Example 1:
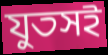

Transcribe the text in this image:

যুতসই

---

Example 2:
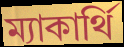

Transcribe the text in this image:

ম্যাকার্থি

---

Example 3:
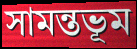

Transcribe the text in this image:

সামন্তভূম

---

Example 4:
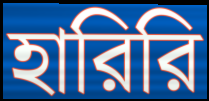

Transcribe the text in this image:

হারিরি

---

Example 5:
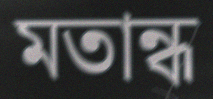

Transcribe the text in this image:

মতান্ধ